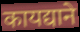
कायद्याने